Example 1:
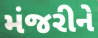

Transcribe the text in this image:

મંજરીને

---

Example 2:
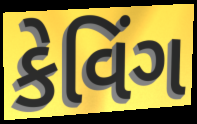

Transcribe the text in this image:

કેવિંગ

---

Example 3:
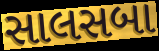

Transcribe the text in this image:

સાલસબા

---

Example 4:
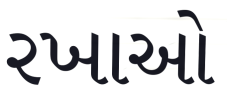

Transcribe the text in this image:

રખાઓ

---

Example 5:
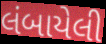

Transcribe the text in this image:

લંબાયેલી